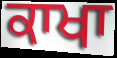
ਕਾਖਾ